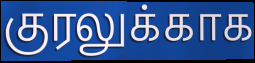
குரலுக்காக